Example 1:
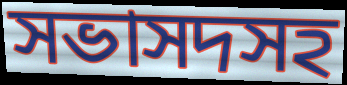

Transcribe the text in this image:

সভাসদসহ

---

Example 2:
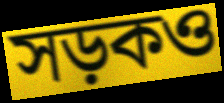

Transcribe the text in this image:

সড়কও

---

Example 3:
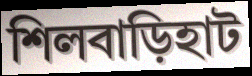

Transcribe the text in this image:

শিলবাড়িহাট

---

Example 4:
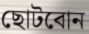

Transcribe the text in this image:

ছোটবোন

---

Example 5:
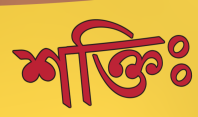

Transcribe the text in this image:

শক্তিঃ